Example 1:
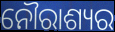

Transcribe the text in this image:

ନୌରାଶ୍ୟର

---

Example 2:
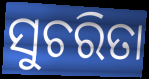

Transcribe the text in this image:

ସୁଚରିତା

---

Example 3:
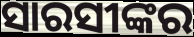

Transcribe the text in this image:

ସାରସୀଙ୍କର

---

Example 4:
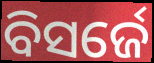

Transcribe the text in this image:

ବିସର୍ଜେ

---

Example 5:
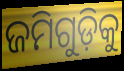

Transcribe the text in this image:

ଜମିଗୁଡ଼ିକୁ